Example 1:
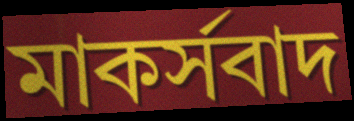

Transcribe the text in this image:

মাকর্সবাদ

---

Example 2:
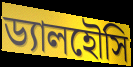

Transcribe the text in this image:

ড্যালহৌসি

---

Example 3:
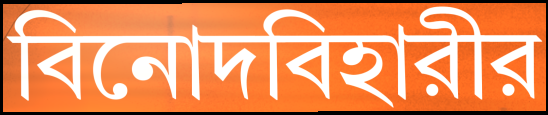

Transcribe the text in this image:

বিনোদবিহারীর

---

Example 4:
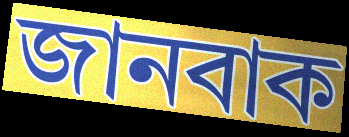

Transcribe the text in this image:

জানবাক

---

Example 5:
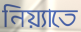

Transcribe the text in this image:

নিয়্যাতে